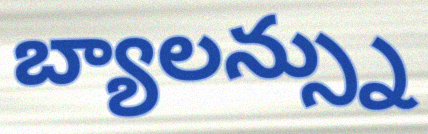
బ్యాలన్స్ను